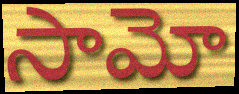
సామో